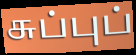
சுப்புப்